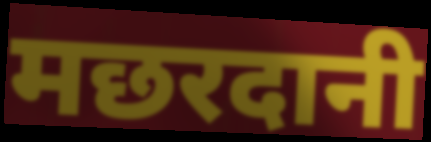
मछरदानी